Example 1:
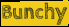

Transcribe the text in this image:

Bunchy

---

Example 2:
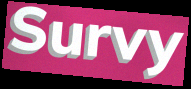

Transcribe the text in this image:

Survy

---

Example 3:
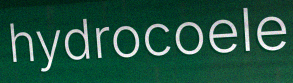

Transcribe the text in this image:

hydrocoele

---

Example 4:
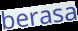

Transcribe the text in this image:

berasa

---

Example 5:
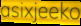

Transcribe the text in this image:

asixjeeko